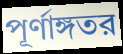
পূর্ণাঙ্গতর